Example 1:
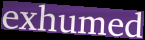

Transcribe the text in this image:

exhumed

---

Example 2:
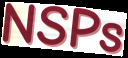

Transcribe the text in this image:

NSPs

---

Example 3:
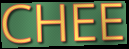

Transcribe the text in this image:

CHEE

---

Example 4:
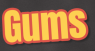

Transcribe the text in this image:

Gums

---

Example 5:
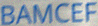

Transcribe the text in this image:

BAMCEF